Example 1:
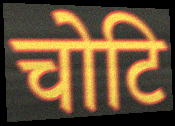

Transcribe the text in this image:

चोटि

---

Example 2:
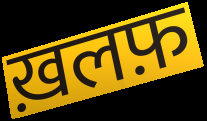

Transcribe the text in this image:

ख़लफ़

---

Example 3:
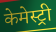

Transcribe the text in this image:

केमेस्ट्री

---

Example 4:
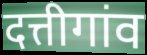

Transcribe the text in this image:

दत्तीगांव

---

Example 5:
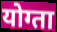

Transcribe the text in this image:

योग्ता